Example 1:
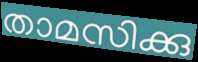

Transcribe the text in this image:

താമസിക്കു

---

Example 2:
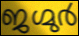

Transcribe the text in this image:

ജഗ്മുർ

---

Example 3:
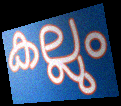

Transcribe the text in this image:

കല്ലും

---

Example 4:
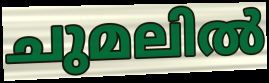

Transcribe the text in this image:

ചുമലിൽ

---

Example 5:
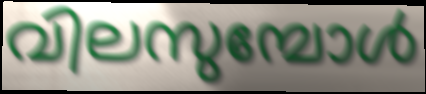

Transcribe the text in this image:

വിലസുമ്പോൾ